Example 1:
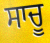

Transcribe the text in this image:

ਸਾਚੂ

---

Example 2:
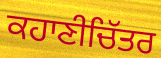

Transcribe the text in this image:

ਕਹਾਣੀਚਿੱਤਰ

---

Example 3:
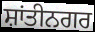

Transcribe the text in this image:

ਸ਼ਾਂਤੀਨਗਰ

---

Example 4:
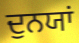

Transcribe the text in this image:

ਦੁਨਯਾਂ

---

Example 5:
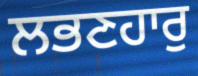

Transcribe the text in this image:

ਲਭਣਹਾਰੁ